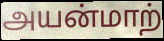
அயன்மாற்